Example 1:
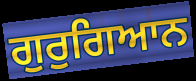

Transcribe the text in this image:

ਗੁਰੁਗਿਆਨ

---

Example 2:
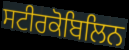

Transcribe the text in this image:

ਸਟੀਰਕੋਬਿਲਿਨ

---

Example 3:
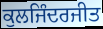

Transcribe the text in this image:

ਕੁਲਜਿੰਦਰਜੀਤ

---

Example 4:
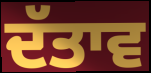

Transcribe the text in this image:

ਦੱਤਾਵ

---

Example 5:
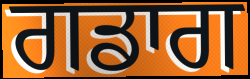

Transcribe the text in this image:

ਗਡਾਗ